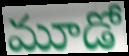
మూడో